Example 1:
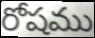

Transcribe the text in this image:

రోషము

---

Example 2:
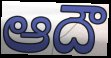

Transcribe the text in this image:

ఆదౌ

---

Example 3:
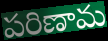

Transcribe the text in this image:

పరిణామ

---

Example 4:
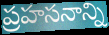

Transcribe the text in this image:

ప్రహసనాన్ని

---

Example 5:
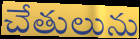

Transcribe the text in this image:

చేతులును